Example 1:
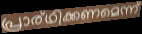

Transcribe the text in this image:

പ്രാര്ഥിക്കണമെന്ന്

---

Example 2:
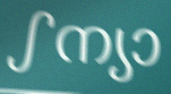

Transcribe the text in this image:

ഽന്യാ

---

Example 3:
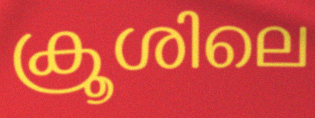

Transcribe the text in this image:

ക്രൂശിലെ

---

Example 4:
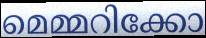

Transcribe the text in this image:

മെമ്മറിക്കോ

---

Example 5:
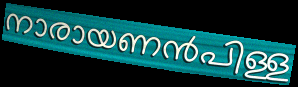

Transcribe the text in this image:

നാരായണൻപിള്ള